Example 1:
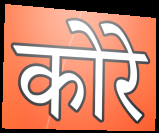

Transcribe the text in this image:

कोरे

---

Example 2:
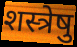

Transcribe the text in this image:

शस्त्रेषु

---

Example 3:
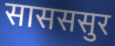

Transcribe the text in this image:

सासससुर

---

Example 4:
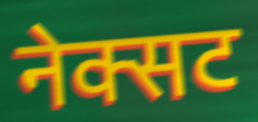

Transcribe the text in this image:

नेक्सट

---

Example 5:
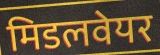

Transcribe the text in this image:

मिडलवेयर